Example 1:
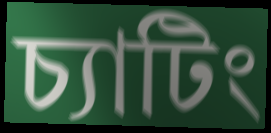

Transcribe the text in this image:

চ্যাটিং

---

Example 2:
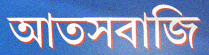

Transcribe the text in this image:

আতসবাজি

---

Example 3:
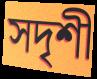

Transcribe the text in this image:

সদৃশী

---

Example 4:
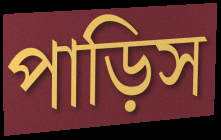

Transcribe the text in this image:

পাড়িস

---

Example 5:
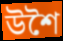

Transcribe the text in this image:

উশৈ